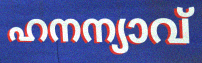
ഹനന്യാവ്